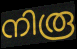
നിരൂ